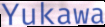
Yukawa